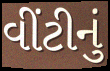
વીંટીનું